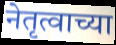
नेतृत्वाच्या